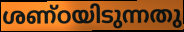
ശണ്ഠയിടുന്നതു